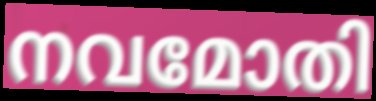
നവമോതി